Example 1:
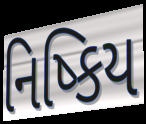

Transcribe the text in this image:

નિષ્કિય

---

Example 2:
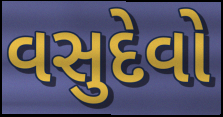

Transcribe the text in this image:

વસુદેવો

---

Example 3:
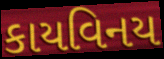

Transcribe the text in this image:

કાયવિનય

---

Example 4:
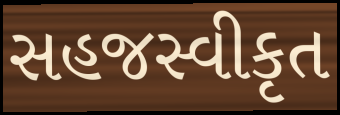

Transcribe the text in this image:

સહજસ્વીકૃત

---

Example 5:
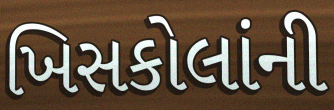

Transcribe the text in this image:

ખિસકોલાંની